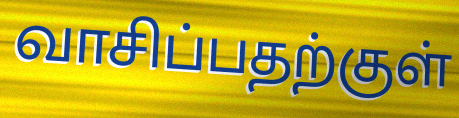
வாசிப்பதற்குள்